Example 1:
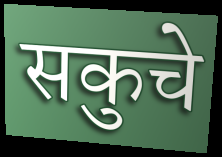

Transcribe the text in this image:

सकुचे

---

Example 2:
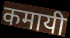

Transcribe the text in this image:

कमायी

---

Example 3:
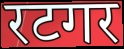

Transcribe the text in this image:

रटगर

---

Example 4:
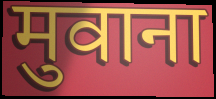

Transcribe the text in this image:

मुवाना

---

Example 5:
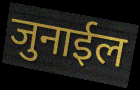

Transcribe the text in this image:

जुनाईल